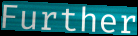
Further